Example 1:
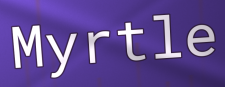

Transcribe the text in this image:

Myrtle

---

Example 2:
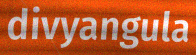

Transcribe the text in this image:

divyangula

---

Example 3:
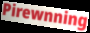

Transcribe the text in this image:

Pirewnning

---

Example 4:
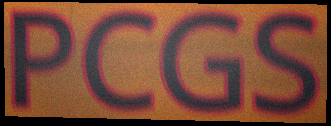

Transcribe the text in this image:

PCGS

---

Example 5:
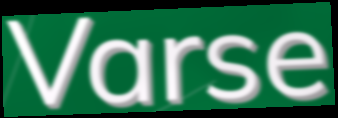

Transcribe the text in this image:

Varse